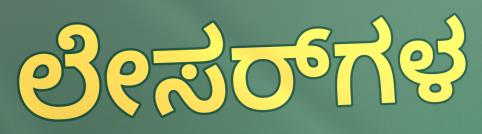
ಲೇಸರ್‌ಗಳ